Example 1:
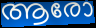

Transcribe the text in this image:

ആരോ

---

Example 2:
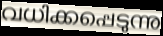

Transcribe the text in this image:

വധിക്കപ്പെടുന്നു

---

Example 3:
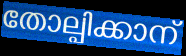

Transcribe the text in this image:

തോല്പിക്കാന്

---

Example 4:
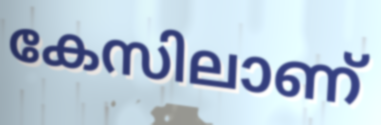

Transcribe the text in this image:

കേസിലാണ്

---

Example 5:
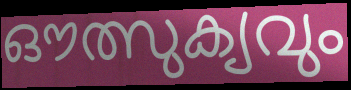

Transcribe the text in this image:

ഔത്സുക്യവും